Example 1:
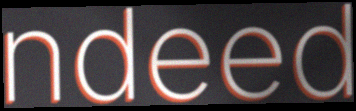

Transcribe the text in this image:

ndeed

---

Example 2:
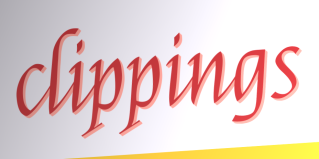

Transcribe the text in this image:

clippings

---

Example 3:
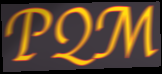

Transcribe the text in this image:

PQM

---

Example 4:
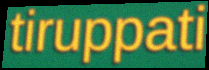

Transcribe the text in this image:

tiruppati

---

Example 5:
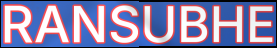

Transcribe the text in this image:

RANSUBHE